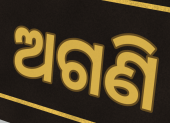
ଅଗଣି